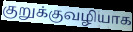
குறுக்குவழியாக